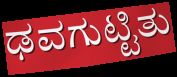
ಢವಗುಟ್ಟಿತು